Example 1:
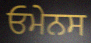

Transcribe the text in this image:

ਓਮੇਨਸ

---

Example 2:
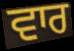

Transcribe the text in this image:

ਵਾਰ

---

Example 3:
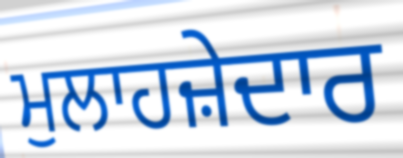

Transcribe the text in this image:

ਮੁਲਾਹਜ਼ੇਦਾਰ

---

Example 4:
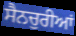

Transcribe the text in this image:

ਸੈਨਚੁਰੀਆਂ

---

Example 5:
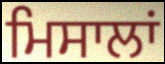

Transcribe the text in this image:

ਮਿਸਾਲਾਂ